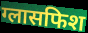
ग्लासफिश